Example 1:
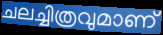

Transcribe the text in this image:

ചലച്ചിത്രവുമാണ്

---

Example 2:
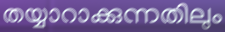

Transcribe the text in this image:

തയ്യാറാക്കുന്നതിലും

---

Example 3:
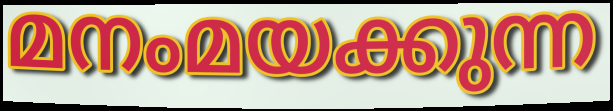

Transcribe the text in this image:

മനംമയക്കുന്ന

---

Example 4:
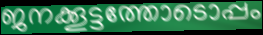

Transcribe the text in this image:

ജനക്കൂട്ടത്തോടൊപ്പം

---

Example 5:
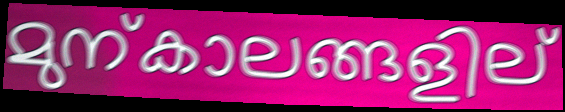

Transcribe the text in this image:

മുന്കാലങ്ങളില്